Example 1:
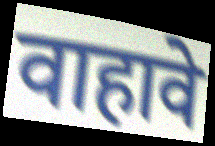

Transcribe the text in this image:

वाहावे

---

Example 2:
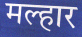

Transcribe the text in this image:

मल्हार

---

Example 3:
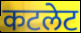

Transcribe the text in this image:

कटलेट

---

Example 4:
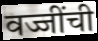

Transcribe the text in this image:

वज्जींची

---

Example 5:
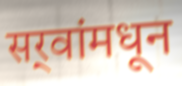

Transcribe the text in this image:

सर्वांमधून